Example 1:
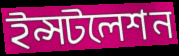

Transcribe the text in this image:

ইন্সটলেশন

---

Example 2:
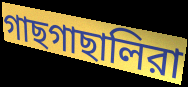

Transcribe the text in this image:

গাছগাছালিরা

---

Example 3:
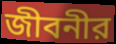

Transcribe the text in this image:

জীবনীর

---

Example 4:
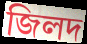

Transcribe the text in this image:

জিলদ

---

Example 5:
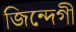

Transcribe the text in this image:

জিন্দেগী